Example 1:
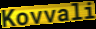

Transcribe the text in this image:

Kovvali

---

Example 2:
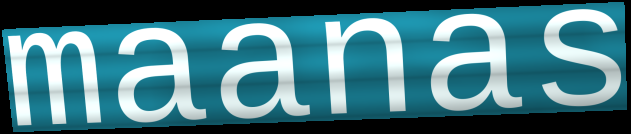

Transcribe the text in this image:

maanas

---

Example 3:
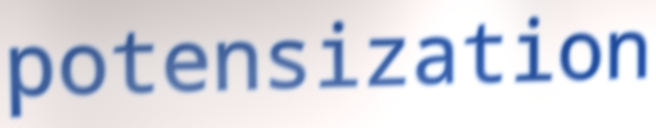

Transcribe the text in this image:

potensization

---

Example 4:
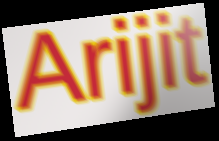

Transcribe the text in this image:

Arijit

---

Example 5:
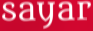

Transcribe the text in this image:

sayar